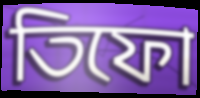
তিফো